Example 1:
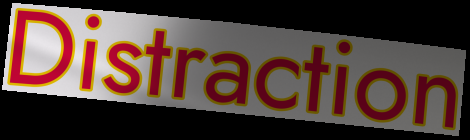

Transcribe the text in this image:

Distraction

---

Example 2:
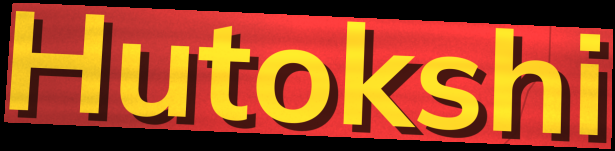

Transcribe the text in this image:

Hutokshi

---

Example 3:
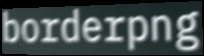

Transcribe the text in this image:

borderpng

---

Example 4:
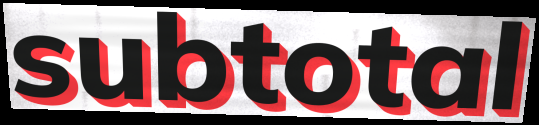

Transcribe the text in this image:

subtotal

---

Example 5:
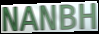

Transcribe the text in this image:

NANBH